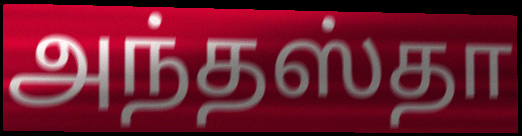
அந்தஸ்தா